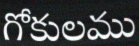
గోకులము